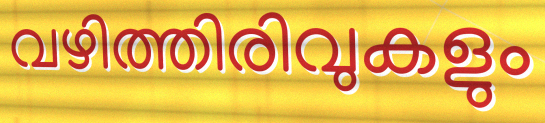
വഴിത്തിരിവുകളും